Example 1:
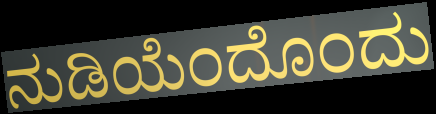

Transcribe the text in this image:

ನುಡಿಯೆಂದೊಂದು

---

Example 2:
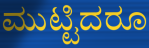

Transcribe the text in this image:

ಮುಟ್ಟಿದರೂ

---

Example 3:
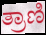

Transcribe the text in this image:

ತ್ರಾಣಿ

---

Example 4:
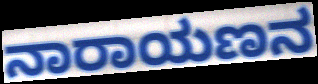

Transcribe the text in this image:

ನಾರಾಯಣನ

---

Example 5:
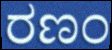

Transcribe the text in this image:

ರಣಂ